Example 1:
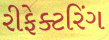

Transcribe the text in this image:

રીફેક્ટરિંગ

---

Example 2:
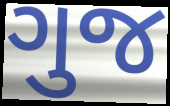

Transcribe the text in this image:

ગુજ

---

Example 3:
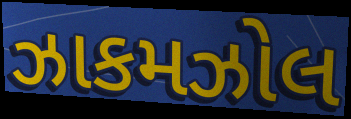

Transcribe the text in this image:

ઝાકમઝોલ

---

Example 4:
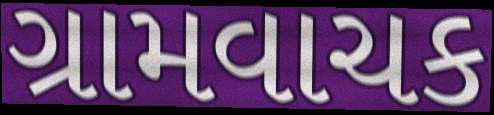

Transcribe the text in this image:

ગ્રામવાચક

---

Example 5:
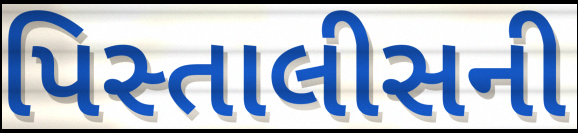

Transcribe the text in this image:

પિસ્તાલીસની